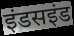
इंडसइंड